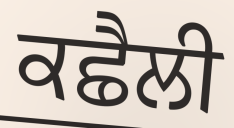
ਕਛੈਲੀ